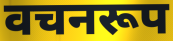
वचनरूप